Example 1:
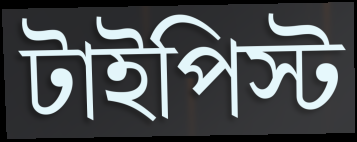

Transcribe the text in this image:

টাইপিস্ট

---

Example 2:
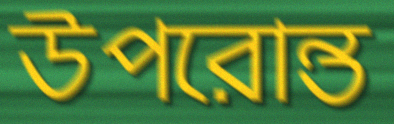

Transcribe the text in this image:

উপরোন্ত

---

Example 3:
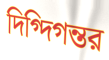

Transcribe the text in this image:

দিগ্দিগন্তর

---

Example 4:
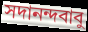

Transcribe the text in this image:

সদানন্দবাবু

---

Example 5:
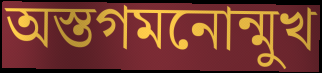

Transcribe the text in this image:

অস্তগমনোন্মুখ